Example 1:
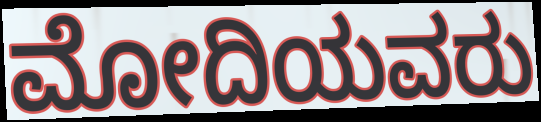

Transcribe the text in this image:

ಮೋದಿಯವರು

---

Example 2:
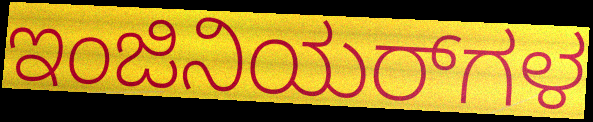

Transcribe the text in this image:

ಇಂಜಿನಿಯರ್‌ಗಳ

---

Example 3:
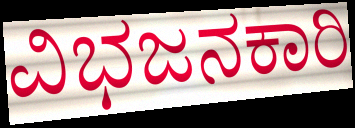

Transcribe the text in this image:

ವಿಭಜನಕಾರಿ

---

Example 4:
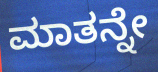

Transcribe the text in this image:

ಮಾತನ್ನೇ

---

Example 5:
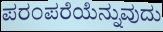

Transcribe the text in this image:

ಪರಂಪರೆಯೆನ್ನುವುದು